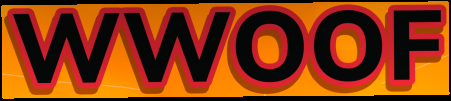
WWOOF